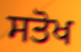
ਸਤੋਖ